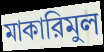
মাকারিমুল